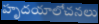
హృదయాలోచనలు